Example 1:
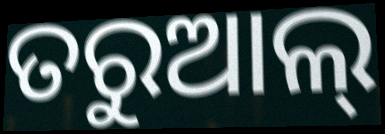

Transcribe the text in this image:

ତରୁଆଲ୍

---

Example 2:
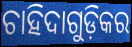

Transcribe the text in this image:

ଚାହିଦାଗୁଡ଼ିକର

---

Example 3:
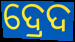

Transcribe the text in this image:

ଦ୍ରେଦ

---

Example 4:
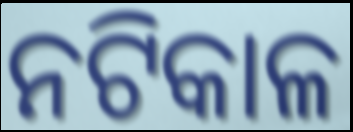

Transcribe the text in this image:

ନଟିକାଳ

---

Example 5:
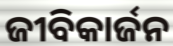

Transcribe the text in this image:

ଜୀବିକାର୍ଜନ